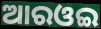
ଆରଓଇ